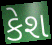
કેશ